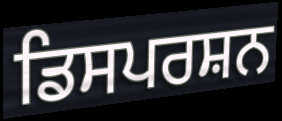
ਡਿਸਪਰਸ਼ਨ